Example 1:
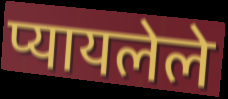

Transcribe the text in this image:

प्यायलेले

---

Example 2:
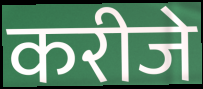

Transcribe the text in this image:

करीजे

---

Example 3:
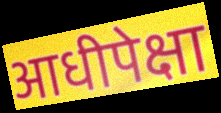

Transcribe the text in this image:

आधीपेक्षा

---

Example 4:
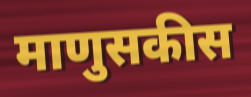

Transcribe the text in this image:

माणुसकीस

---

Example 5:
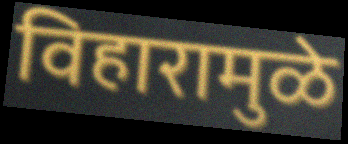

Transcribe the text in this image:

विहारामुळे